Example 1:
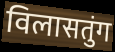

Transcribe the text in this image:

विलासतुंग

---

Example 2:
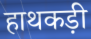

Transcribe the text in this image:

हाथकड़ी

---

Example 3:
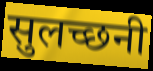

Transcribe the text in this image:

सुलच्छनी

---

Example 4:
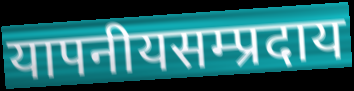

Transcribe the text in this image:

यापनीयसम्प्रदाय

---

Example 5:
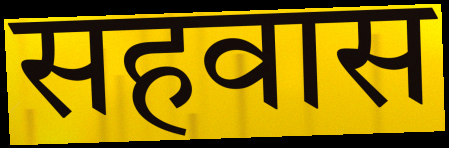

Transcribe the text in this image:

सहवास